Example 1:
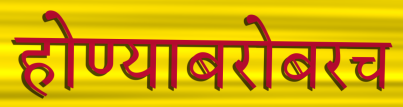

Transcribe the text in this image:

होण्याबरोबरच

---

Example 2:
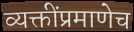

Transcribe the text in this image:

व्यक्तींप्रमाणेच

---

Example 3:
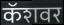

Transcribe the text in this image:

कॅशवर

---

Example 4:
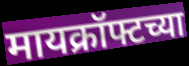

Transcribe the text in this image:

मायक्रॉफ्टच्या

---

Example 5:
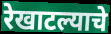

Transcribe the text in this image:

रेखाटल्याचे